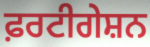
ਫ਼ਰਟੀਗੇਸ਼ਨ